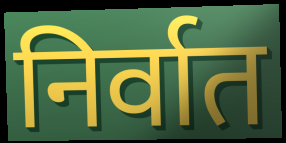
निर्वात